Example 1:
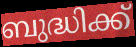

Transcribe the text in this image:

ബുദ്ധിക്ക്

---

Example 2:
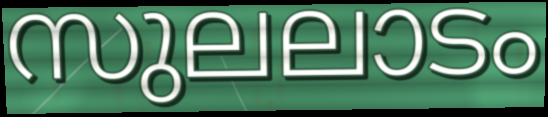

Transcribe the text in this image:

സുലലാടം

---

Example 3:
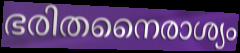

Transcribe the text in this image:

ഭരിതനൈരാശ്യം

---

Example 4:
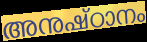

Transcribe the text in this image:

അനുഷ്‌ഠാനം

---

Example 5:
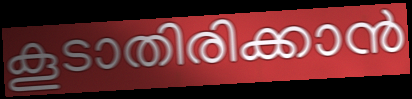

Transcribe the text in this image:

കൂടാതിരിക്കാൻ